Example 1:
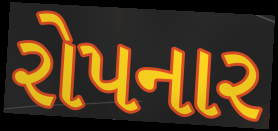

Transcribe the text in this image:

રોપનાર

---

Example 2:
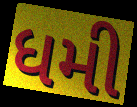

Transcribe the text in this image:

ધમી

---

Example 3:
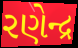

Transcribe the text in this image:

રણેન્દ્ર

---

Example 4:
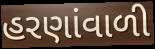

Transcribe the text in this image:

હરણાંવાળી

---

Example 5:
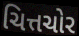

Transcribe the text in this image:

ચિત્તચોર